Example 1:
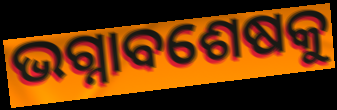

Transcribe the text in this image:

ଭଗ୍ନାବଶେଷକୁ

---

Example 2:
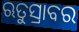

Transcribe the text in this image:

ଋତୁସ୍ରାବର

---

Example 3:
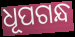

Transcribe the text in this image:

ଧୂପଗନ୍ଧ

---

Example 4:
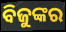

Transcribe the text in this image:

ବିଜୁଙ୍କର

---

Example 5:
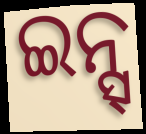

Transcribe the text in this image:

ଇନ୍ସ୍